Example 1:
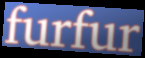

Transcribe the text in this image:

furfur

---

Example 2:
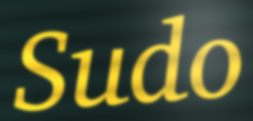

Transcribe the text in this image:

Sudo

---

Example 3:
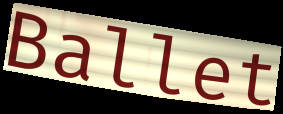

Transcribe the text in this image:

Ballet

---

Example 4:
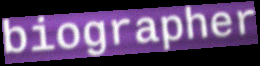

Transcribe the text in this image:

biographer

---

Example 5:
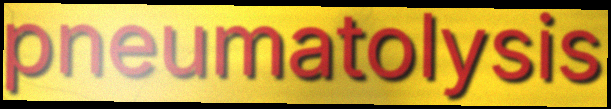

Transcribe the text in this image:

pneumatolysis